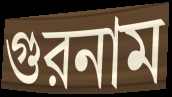
গুরনাম